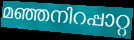
മഞ്ഞനിറപ്പാറ്റ